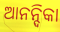
ଆନନ୍ଦିକା